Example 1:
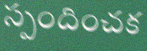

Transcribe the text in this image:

స్పందించక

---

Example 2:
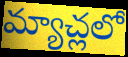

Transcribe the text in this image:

మ్యాచ్లలో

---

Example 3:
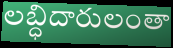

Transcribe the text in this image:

లబ్ధిదారులంతా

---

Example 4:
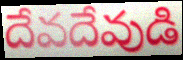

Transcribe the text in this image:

దేవదేవుడి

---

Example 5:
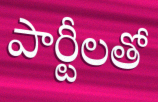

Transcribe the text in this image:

పార్టీలతో